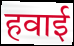
हवाई